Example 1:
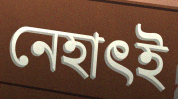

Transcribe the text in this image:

নেহাৎই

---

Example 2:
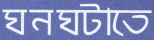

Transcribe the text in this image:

ঘনঘটাতে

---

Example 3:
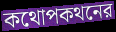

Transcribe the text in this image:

কথোপকথনের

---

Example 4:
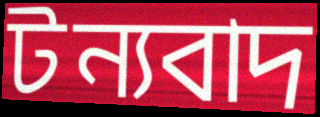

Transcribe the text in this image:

টন্যবাদ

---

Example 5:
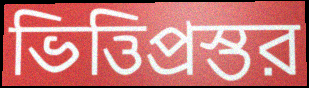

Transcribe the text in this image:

ভিত্তিপ্রস্তর